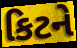
કિટને